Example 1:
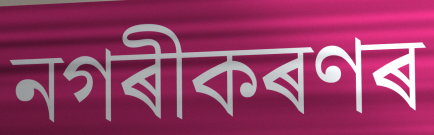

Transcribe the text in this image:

নগৰীকৰণৰ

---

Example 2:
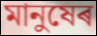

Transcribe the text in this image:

মানুষেৰ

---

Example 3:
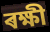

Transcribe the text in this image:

ৰক্ষী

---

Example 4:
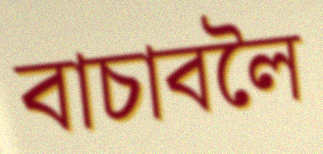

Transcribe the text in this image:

বাচাবলৈ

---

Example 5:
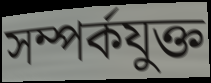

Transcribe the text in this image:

সম্পৰ্কযুক্ত